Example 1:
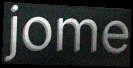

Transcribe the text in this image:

jome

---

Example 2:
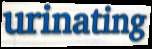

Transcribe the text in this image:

urinating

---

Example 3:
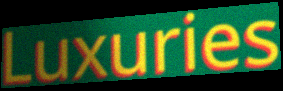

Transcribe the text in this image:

Luxuries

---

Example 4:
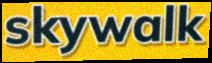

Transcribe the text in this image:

skywalk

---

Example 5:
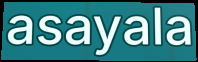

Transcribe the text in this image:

asayala